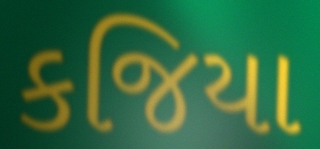
કજિયા